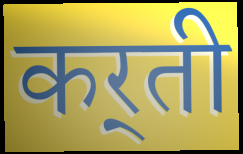
कर्ती